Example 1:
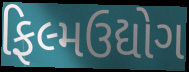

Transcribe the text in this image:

ફિલ્મઉદ્યોગ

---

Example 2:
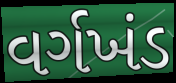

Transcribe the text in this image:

વર્ગખંડ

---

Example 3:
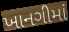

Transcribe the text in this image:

ખાનગીમાં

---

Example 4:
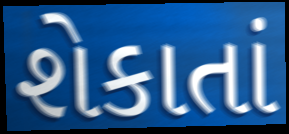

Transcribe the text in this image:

શેકાતાં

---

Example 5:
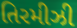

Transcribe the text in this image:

તિરમીઝી